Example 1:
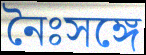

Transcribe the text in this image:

নৈঃসঙ্গে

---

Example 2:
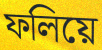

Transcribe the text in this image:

ফলিয়ে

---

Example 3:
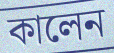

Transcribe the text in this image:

কালেন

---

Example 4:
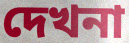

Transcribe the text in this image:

দেখনা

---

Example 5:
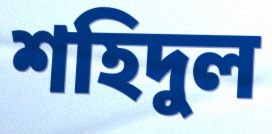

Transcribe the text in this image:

শহিদুল